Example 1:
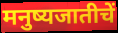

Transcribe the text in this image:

मनुष्यजातीचें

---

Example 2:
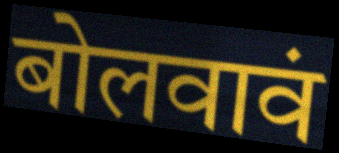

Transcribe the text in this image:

बोलवावं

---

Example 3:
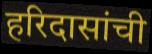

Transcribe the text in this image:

हरिदासांची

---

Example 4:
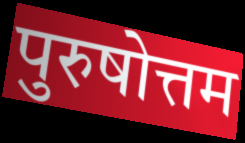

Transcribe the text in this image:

पुरुषोत्तम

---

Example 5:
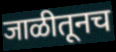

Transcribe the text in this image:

जाळीतूनच